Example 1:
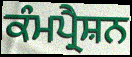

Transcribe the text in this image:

ਕੰਮਪ੍ਰੈਸ਼ਨ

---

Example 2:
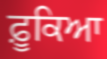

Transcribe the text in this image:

ਫ਼ੂਕਿਆ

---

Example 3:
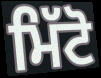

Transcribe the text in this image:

ਮਿੱਟੋ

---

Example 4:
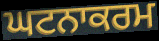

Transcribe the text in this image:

ਘਟਨਾਕਰਮ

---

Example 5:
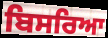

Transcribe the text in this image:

ਬਿਸਰਿਆ